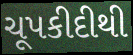
ચૂપકીદીથી